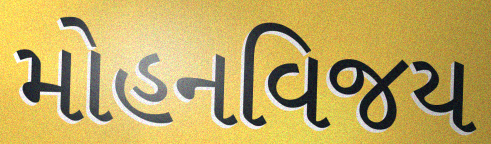
મોહનવિજય